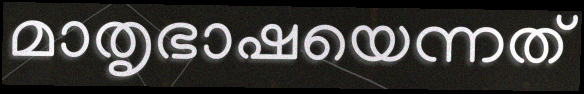
മാതൃഭാഷയെന്നത്